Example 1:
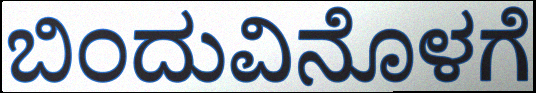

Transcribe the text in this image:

ಬಿಂದುವಿನೊಳಗೆ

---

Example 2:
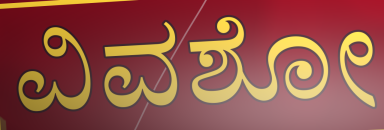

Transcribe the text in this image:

ವಿವಶೋ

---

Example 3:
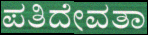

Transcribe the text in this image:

ಪತಿದೇವತಾ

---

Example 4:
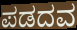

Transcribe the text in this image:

ಪಡದವ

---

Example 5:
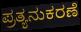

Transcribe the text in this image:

ಪ್ರತ್ಯನುಕರಣೆ